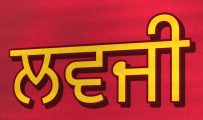
ਲਵਜੀ